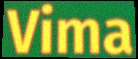
Vima